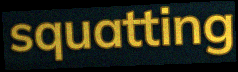
squatting